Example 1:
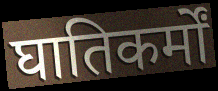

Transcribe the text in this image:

घातिकर्मों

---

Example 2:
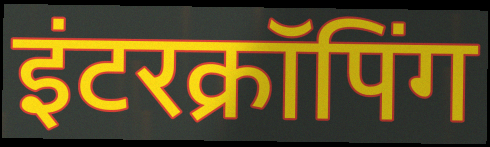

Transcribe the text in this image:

इंटरक्रॉपिंग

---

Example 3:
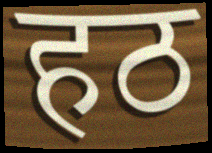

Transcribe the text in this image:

हठ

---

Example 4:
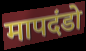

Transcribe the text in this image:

मापदंडो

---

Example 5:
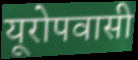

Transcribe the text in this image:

यूरोपवासी